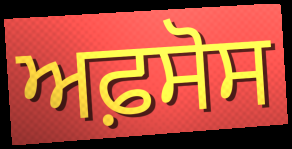
ਅਫ਼ਸੋਸ